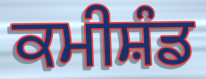
ਕਮੀਸ਼ੰਡ